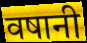
वषानी